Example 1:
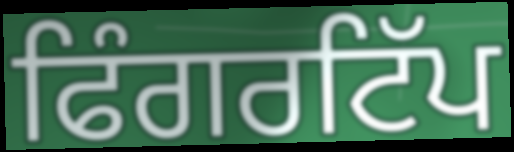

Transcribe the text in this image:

ਫਿੰਗਰਟਿੱਪ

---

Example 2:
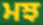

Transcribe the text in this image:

ਮਝ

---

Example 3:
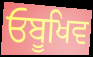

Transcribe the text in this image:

ਓਬੂਖਿਵ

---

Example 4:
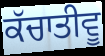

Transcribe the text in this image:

ਕੱਚਾਤੀਵੂ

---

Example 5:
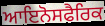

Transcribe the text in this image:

ਆਇਨੋਸਫੈਰਿਕ